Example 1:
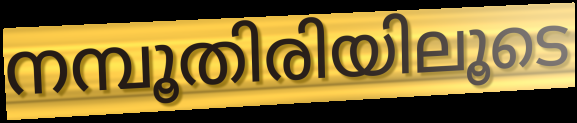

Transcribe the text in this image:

നമ്പൂതിരിയിലൂടെ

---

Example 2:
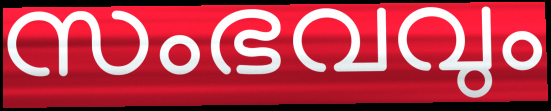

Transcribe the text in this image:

സംഭവവും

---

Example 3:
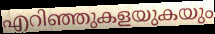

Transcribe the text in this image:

എറിഞ്ഞുകളയുകയും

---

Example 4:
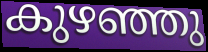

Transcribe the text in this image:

കുഴഞ്ഞു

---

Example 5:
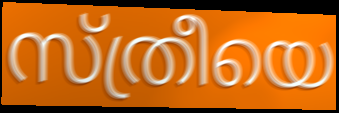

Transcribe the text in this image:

സ്ത്രീയെ